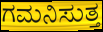
ಗಮನಿಸುತ್ತ